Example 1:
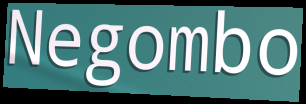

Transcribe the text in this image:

Negombo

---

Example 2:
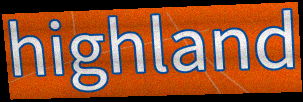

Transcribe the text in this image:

highland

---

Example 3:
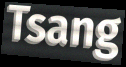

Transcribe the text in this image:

Tsang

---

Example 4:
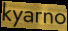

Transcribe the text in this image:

kyarno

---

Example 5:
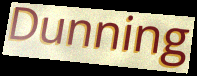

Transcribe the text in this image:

Dunning